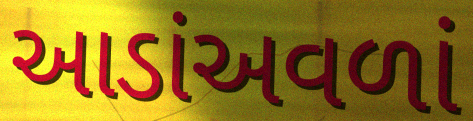
આડાંઅવળાં